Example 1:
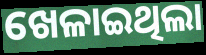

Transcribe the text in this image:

ଖେଳାଇଥିଲା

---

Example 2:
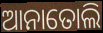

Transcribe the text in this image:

ଆନାତୋଲି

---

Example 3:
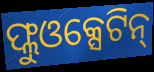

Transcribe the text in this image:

ଫ୍ଲୁଓକ୍ସେଟିନ୍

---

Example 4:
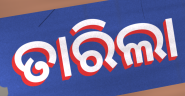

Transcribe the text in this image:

ତାରିଲା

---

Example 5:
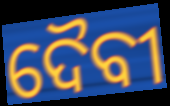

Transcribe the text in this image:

ଦୈବୀ